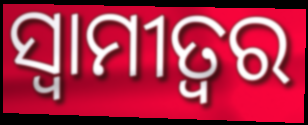
ସ୍ଵାମୀତ୍ୱର